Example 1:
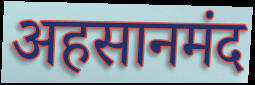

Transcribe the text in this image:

अहसानमंद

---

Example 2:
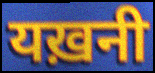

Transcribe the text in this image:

यख़नी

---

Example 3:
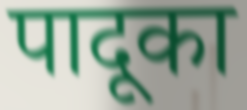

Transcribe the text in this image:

पादूका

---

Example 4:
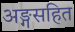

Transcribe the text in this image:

अङ्गसहित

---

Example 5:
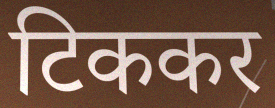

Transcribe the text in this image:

टिककर